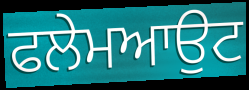
ਫਲੇਮਆਉਟ